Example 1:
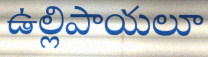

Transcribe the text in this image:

ఉల్లిపాయలూ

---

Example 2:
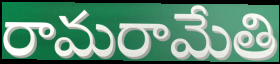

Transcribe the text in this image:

రామరామేతి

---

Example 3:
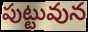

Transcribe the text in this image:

పుట్టువున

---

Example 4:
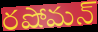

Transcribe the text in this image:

రషోమన్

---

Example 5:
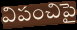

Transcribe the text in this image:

విపంచిపై